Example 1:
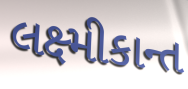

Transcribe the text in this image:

લક્ષ્મીકાન્ત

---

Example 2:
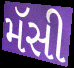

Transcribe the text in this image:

મૅસી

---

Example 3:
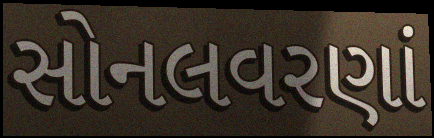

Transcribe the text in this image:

સોનલવરણાં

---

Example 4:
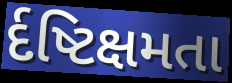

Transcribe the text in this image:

ર્દષ્ટિક્ષમતા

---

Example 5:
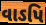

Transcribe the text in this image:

વાઽપિ